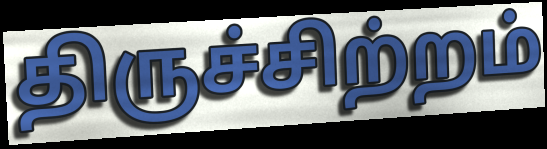
திருச்சிற்றம்